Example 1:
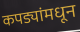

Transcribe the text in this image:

कपड्यांमधून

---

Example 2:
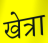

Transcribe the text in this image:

खेत्रा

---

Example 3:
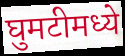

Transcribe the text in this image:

घुमटीमध्ये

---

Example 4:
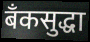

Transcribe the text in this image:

बँकसुद्धा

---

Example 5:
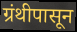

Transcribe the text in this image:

ग्रंथीपासून